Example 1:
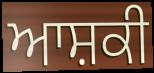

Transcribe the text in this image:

ਆਸ਼ਕੀ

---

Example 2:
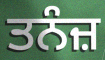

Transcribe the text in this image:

ਤਨੰਜ਼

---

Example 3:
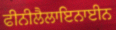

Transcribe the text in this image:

ਫੀਨੀਲੈਲਾਇਨਾਈਨ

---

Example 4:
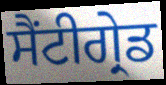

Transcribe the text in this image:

ਸੈਂਟੀਗ੍ਰੇਡ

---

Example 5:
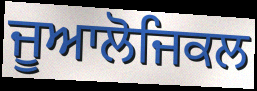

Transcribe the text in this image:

ਜੂਆਲੋਜਿਕਲ